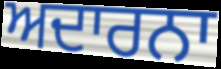
ਅਦਾਰਨਾ